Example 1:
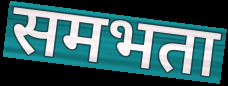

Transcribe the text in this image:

समभता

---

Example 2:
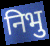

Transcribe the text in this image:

निभु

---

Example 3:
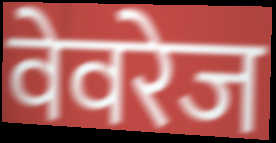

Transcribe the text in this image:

वेवरेज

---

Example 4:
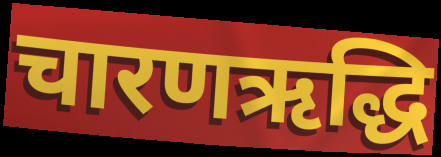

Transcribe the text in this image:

चारणऋद्धि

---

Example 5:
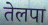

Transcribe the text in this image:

तेलपा